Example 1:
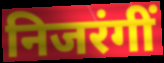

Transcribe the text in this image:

निजरंगीं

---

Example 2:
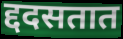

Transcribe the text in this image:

द्ददसतात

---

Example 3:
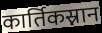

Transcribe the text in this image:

कार्तिकस्नान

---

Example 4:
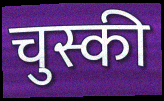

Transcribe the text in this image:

चुस्की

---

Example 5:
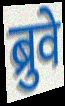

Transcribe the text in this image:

ब्रुवे